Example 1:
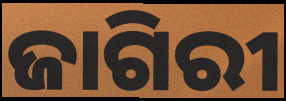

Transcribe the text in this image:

ଜାଗିରୀ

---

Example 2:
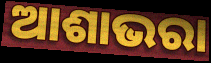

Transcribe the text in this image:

ଆଶାଭରା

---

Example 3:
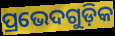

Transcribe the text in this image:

ପ୍ରଭେଦଗୁଡ଼ିକ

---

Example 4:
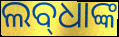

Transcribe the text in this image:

ଲବ୍‌ଧାଙ୍କ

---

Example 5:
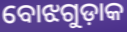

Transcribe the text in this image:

ବୋଝଗୁଡ଼ାକ